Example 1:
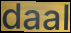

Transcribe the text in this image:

daal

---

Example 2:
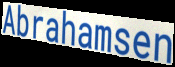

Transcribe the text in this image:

Abrahamsen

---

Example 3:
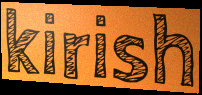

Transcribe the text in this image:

kirish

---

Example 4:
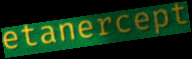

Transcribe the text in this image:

etanercept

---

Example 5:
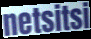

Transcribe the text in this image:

netsitsi